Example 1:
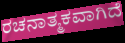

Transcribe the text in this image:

ರಚನಾತ್ಮಕವಾಗಿದೆ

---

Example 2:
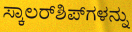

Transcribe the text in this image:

ಸ್ಕಾಲರ್‌ಶಿಪ್‌ಗಳನ್ನು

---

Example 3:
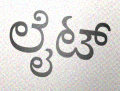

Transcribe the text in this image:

ಲೈಟ್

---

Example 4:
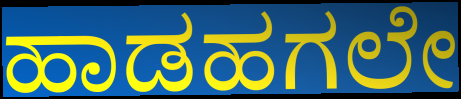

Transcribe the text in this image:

ಹಾಡಹಗಲೇ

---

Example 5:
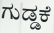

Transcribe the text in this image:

ಗುಡ್ಡಕೆ